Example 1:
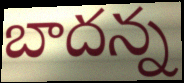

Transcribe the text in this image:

బాదన్న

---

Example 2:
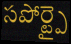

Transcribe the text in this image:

సపోర్ట్పై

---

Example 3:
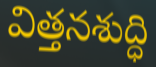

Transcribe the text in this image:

విత్తనశుద్ధి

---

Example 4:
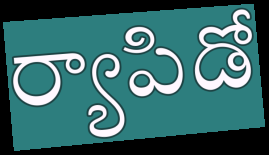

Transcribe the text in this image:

ర్యాపిడో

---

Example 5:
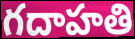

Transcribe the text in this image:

గదాహతి